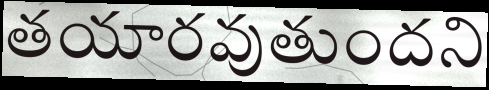
తయారవుతుందని